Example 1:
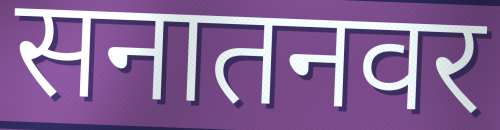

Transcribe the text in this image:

सनातनवर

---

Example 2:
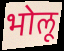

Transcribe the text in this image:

भोलू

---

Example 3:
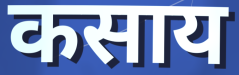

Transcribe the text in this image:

कसाय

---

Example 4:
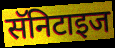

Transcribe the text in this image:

सॅनिटाइज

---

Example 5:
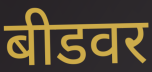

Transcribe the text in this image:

बीडवर